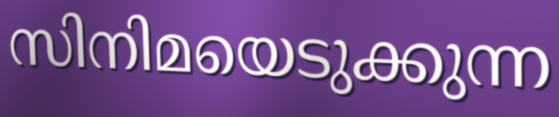
സിനിമയെടുക്കുന്ന